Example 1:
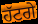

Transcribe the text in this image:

ਹੱਟਗੇ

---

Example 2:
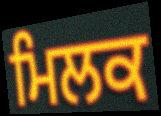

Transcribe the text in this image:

ਮਿਲਕ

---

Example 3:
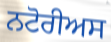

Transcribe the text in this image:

ਨਟੋਰੀਅਸ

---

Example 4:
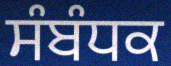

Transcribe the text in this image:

ਸੰਬੰਧਕ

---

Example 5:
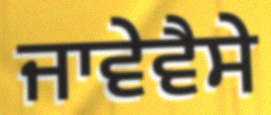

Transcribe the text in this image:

ਜਾਵੇਵੈਸੇ